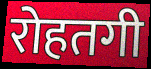
रोहतगी